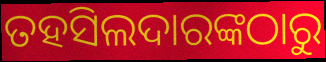
ତହସିଲଦାରଙ୍କଠାରୁ